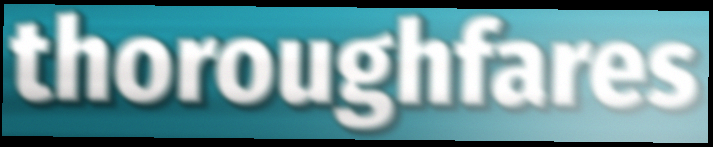
thoroughfares